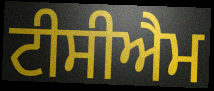
ਟੀਸੀਐਮ